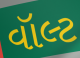
વૉલ્ટ